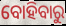
ବୋହିବାରୁ